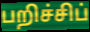
பறிச்சிப்